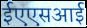
ईएएसआई